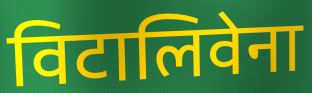
विटालिवेना